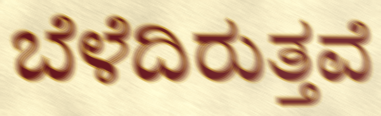
ಬೆಳೆದಿರುತ್ತವೆ